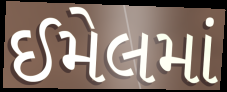
ઈમેલમાં